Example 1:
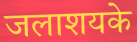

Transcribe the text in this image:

जलाशयके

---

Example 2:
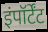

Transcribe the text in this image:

इंपॉर्टेंट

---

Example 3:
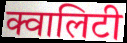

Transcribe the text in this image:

क्वालिटी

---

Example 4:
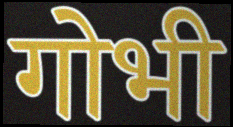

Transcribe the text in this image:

गोभी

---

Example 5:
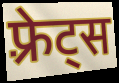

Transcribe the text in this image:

फ़्रेट्स